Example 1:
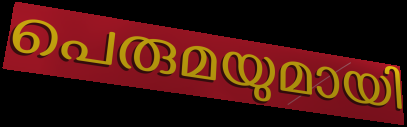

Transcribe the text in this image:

പെരുമയുമായി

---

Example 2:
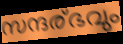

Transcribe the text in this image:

സന്ദര്ഭവും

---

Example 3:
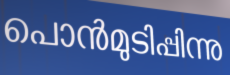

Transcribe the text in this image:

പൊൻമുടിപ്പിന്നു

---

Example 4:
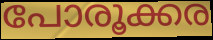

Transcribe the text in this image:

പോരൂക്കര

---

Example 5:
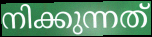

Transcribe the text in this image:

നിക്കുന്നത്